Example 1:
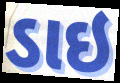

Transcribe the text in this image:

ડાઇ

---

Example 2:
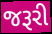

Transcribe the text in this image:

જરૂરી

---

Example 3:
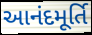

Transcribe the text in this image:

આનંદમૂર્તિ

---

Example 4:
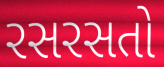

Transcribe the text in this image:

રસરસતો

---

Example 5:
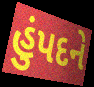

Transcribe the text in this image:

હુંપદને